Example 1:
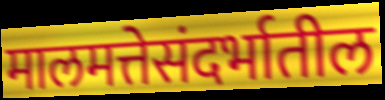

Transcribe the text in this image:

मालमत्तेसंदर्भातील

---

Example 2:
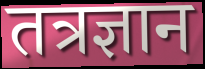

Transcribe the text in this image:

तत्रज्ञान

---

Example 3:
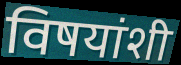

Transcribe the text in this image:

विषयांशी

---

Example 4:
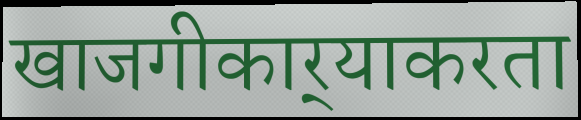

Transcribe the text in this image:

खाजगीकार्याकरता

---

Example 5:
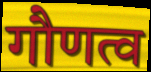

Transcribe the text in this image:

गौणत्व